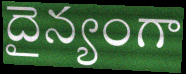
దైన్యంగా